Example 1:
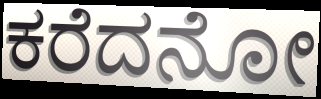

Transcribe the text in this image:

ಕರೆದನೋ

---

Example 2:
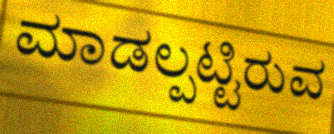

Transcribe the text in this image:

ಮಾಡಲ್ಪಟ್ಟಿರುವ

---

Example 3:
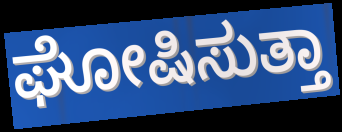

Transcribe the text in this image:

ಘೋಷಿಸುತ್ತಾ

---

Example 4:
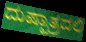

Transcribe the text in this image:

ದುಷ್ಪಾತ್ರದಲಿ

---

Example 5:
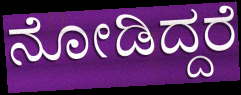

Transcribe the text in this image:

ನೋಡಿದ್ದರೆ